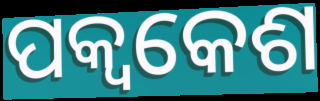
ପକ୍ଵକେଶ